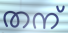
തന്